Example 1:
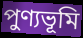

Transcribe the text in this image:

পুণ্যভূমি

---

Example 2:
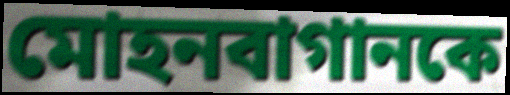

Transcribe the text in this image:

মোহনবাগানকে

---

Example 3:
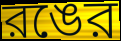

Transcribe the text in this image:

রঙের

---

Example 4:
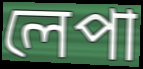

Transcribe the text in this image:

লেপা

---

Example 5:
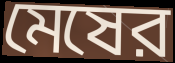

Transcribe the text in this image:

মেষের